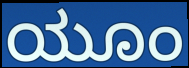
ಯೂಂ